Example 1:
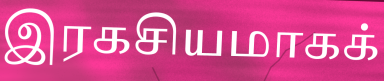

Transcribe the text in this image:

இரகசியமாகக்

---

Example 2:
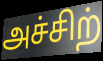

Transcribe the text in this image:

அச்சிற்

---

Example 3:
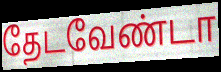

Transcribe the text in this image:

தேடவேண்டா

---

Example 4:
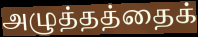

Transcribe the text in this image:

அழுத்தத்தைக்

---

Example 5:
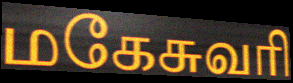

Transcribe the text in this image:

மகேசுவரி